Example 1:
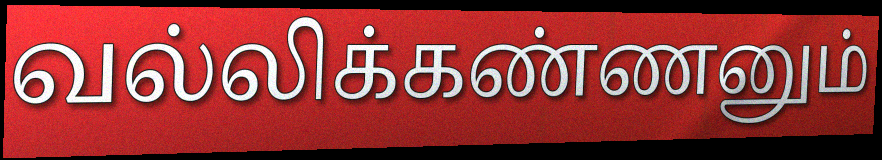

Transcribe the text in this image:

வல்லிக்கண்ணனும்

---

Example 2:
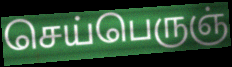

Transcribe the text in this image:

செய்பெருஞ்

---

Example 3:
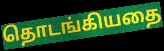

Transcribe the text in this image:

தொடங்கியதை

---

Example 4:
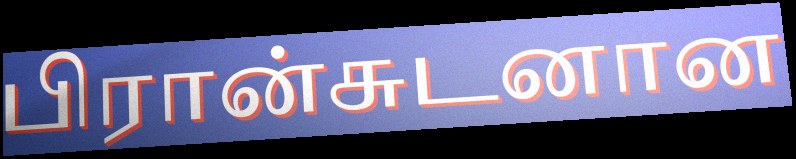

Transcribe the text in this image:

பிரான்சுடனான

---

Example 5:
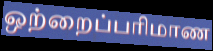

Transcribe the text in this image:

ஒற்றைப்பரிமாண